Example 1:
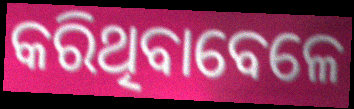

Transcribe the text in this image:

କରିଥିବାବେଳେ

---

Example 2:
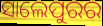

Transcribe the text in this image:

ସାଲେପୁରର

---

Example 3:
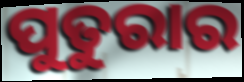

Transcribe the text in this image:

ପୁତୁରାର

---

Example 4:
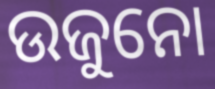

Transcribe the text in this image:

ଉଜୁନୋ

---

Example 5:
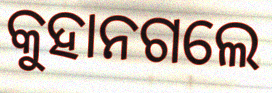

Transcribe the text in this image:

କୁହାନଗଲେ